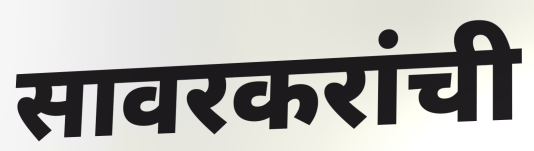
सावरकरांची